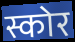
स्कोर